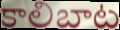
కాలిబాట